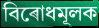
বিৰোধমূলক